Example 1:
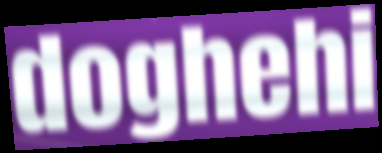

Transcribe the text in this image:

doghehi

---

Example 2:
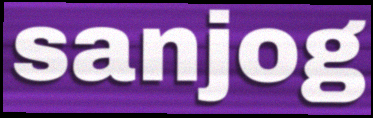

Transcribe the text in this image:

sanjog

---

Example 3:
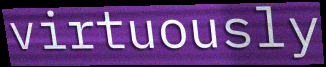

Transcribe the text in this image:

virtuously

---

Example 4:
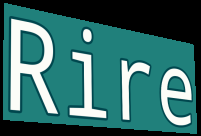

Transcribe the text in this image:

Rire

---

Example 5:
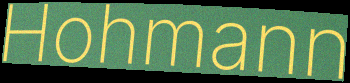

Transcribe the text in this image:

Hohmann